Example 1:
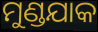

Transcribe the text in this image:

ମୁଣ୍ଡଯାକ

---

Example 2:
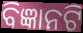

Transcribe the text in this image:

ବିଜ୍ଞାନଟି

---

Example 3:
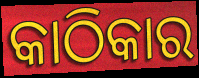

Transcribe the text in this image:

କାଠିକାର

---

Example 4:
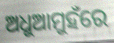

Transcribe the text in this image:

ଅଧୁଆମୁହଁରେ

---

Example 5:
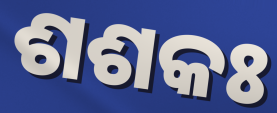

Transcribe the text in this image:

ଶଶକଃ